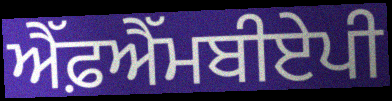
ਐੱਫ਼ਐੱਮਬੀਏਪੀ